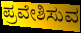
ಪ್ರವೇಶಿಸುವ